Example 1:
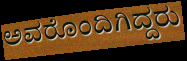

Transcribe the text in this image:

ಅವರೊಂದಿಗಿದ್ದರು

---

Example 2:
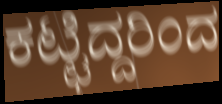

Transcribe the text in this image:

ಕಟ್ಟಿದ್ದರಿಂದ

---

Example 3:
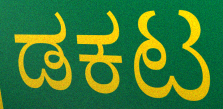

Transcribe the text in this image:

ಡಕಟ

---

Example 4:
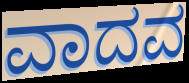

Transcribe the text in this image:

ವಾದವ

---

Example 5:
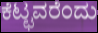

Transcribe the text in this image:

ಕೆಟ್ಟವರೆಂದು